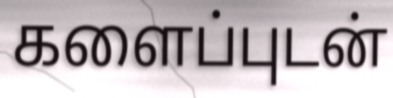
களைப்புடன்